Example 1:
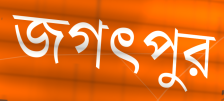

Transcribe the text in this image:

জগৎপুর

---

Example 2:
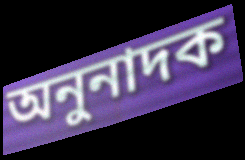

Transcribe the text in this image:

অনুনাদক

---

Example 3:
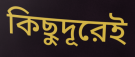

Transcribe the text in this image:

কিছুদূরেই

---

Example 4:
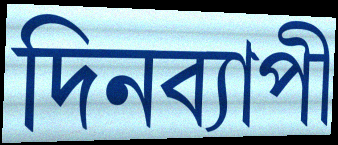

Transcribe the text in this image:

দিনব্যাপী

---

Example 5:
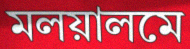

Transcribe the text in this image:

মলয়ালমে